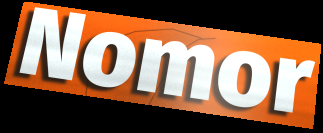
Nomor